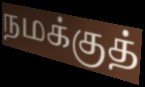
நமக்குத்